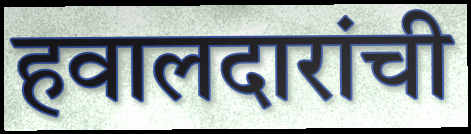
हवालदारांची